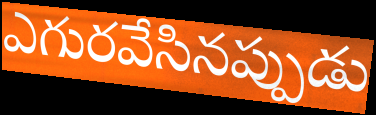
ఎగురవేసినప్పుడు